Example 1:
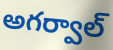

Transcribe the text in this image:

అగర్వాల్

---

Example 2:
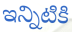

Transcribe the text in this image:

ఇన్నిటికి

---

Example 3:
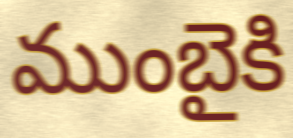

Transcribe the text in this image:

ముంబైకి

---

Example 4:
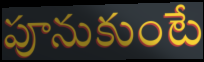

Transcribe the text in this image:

పూనుకుంటే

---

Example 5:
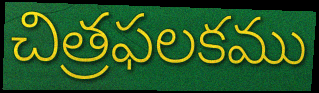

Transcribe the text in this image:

చిత్రఫలకము